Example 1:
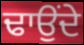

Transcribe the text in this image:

ਢਾਉਂਦੇ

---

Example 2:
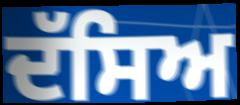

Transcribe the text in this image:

ਦੱਸਿਅ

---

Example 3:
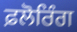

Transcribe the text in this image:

ਫ਼ਲੋਰਿੰਗ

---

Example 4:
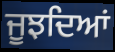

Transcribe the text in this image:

ਜੂਝਦਿਆਂ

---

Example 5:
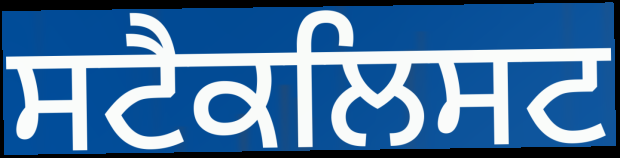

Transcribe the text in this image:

ਸਟੈਕਲਿਸਟ